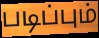
படிப்பும்